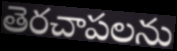
తెరచాపలను